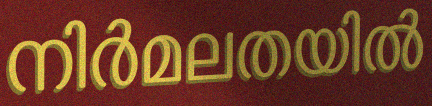
നിർമലതയിൽ